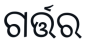
ଗର୍ତ୍ତର